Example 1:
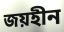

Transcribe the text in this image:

জয়হীন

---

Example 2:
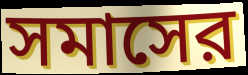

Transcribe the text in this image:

সমাসের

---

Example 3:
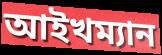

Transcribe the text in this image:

আইখম্যান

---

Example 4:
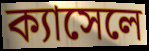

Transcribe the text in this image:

ক্যাসেলে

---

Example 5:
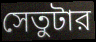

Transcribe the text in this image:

সেতুটার